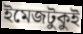
ইমেজটুকুই